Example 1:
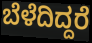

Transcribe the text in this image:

ಬೆಳೆದಿದ್ದರೆ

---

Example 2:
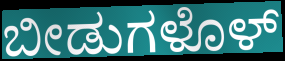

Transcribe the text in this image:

ಬೀಡುಗಳೊಳ್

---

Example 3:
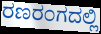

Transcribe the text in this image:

ರಣರಂಗದಲ್ಲಿ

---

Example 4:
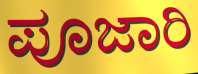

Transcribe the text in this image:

ಪೂಜಾರಿ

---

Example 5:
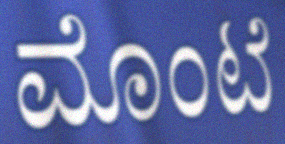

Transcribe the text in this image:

ಮೊಂಟೆ